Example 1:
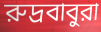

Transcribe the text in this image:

রুদ্রবাবুরা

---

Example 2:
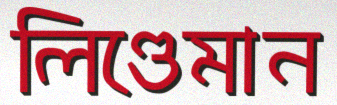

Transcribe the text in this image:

লিণ্ডেমান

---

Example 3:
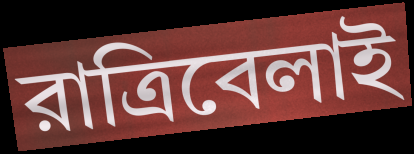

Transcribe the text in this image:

রাত্রিবেলাই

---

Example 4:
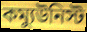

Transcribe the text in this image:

কম্যুউনিস্ট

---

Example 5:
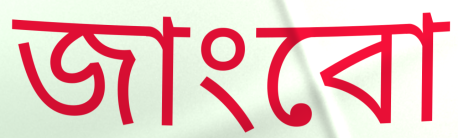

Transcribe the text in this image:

জাংবো